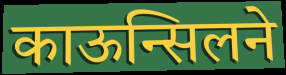
काऊन्सिलने